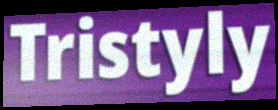
Tristyly